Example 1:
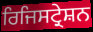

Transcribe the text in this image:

ਰਿਜਿਸਟ੍ਰੇਸ਼ਨ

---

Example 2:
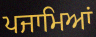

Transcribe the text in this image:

ਪਜਾਮਿਆਂ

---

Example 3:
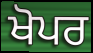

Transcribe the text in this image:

ਖੋਪਰ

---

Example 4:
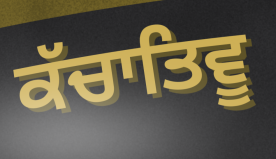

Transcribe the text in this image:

ਕੱਚਾਤਿਵੂ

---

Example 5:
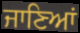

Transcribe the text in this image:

ਜਾਣਿਆਂ